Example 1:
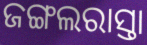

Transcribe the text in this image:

ଜଙ୍ଗଲରାସ୍ତା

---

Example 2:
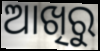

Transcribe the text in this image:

ଆଖିରୁ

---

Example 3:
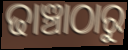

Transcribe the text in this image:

ଢାଞ୍ଚାଠାରୁ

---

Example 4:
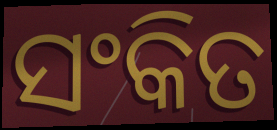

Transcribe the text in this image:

ସଂକିତ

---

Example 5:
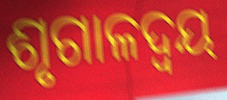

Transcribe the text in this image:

ଶୃଗାଳଦ୍ୱୟ